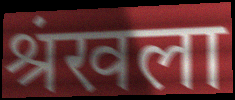
श्रंखला